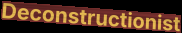
Deconstructionist